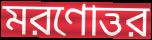
মরণোত্তর